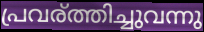
പ്രവര്ത്തിച്ചുവന്നു